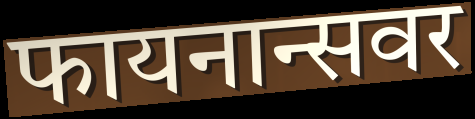
फायनान्सवर